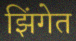
झिंगेत